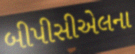
બીપીસીએલના